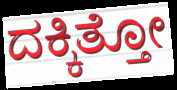
ದಕ್ಕಿತ್ತೋ